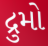
દ્રુમો